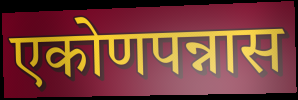
एकोणपन्नास